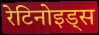
रेटिनोइड्स